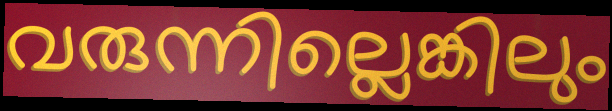
വരുന്നില്ലെങ്കിലും